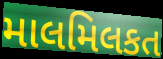
માલમિલકત